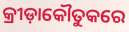
କ୍ରୀଡ଼ାକୌତୁକରେ